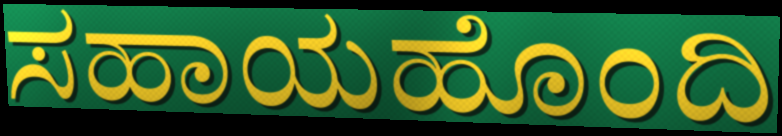
ಸಹಾಯಹೊಂದಿ